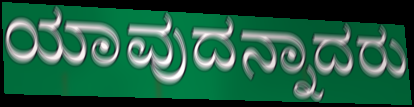
ಯಾವುದನ್ನಾದರು